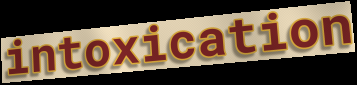
intoxication